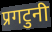
प्रगटुनी